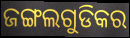
ଜଙ୍ଗଲଗୁଡିକର